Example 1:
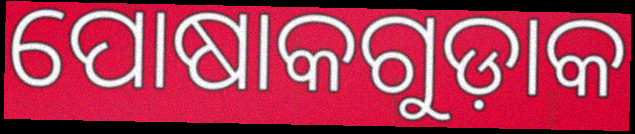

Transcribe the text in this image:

ପୋଷାକଗୁଡ଼ାକ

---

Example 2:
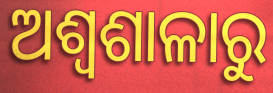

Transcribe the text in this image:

ଅଶ୍ୱଶାଳାରୁ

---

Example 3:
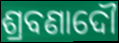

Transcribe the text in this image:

ଶ୍ରବଣାଦୌ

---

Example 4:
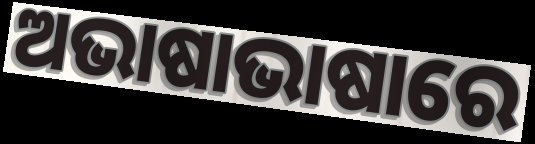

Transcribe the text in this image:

ଅଭାଷାଭାଷାରେ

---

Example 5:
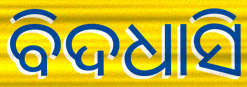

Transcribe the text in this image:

ବିଦଧାସି